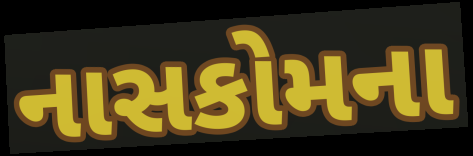
નાસકોમના